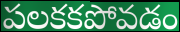
పలకకపోవడం